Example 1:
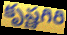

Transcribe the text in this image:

కృష్ణగిరి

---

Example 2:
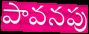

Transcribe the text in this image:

పావనపు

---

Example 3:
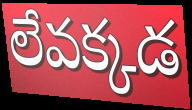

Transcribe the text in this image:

లేవక్కడ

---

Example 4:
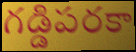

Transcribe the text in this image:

గడ్డిపరకా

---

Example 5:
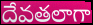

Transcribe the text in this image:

దేవతలాగా